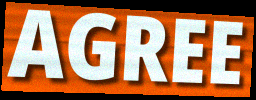
AGREE